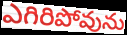
ఎగిరిపోవును